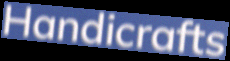
Handicrafts